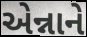
એન્નાને